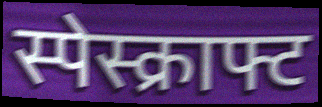
स्पेस्क्राफ्ट